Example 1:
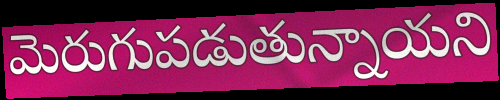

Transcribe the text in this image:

మెరుగుపడుతున్నాయని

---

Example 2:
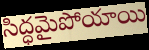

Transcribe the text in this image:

సిద్ధమైపోయాయి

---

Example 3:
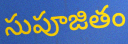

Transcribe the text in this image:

సుపూజితం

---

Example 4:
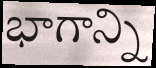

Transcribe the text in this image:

భాగాన్ని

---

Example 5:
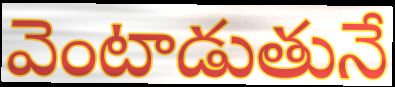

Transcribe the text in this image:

వెంటాడుతునే